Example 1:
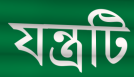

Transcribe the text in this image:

যন্ত্রটি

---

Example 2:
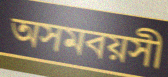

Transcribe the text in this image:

অসমবয়সী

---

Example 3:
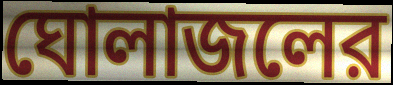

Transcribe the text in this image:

ঘোলাজলের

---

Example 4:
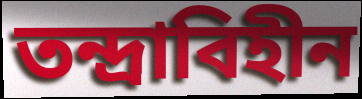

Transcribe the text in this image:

তন্দ্রাবিহীন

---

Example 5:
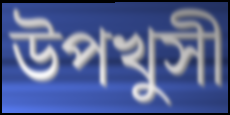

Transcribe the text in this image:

উপখুসী